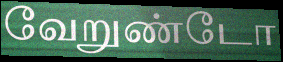
வேறுண்டோ